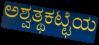
ಅಶ್ವತ್ಥಕಟ್ಟೆಯ